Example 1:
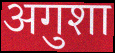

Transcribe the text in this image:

अगुशा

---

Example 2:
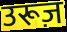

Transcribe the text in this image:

उरूज़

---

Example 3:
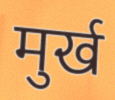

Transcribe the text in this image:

मुर्ख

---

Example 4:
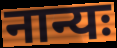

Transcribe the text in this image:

नान्यः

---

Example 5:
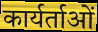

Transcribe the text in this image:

कार्यर्ताओं